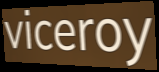
viceroy